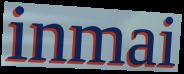
inmai